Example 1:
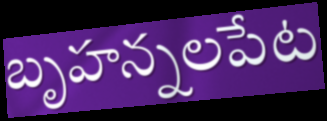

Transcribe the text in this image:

బృహన్నలపేట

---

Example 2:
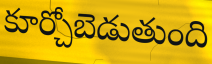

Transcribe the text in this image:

కూర్చోబెడుతుంది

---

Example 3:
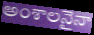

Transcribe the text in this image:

అంశాలనైనా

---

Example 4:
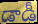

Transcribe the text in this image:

డాడీ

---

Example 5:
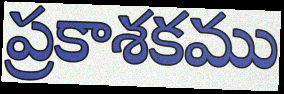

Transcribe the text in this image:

ప్రకాశకము